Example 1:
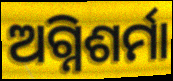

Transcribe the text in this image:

ଅଗ୍ନିଶର୍ମା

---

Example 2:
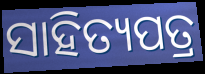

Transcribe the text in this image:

ସାହିତ୍ୟପତ୍ର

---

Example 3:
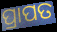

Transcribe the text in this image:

ପ୍ରାପତ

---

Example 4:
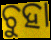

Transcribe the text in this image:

ଚୁହା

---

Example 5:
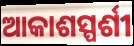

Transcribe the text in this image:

ଆକାଶସ୍ପର୍ଶୀ